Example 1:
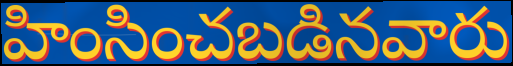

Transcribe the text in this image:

హింసించబడినవారు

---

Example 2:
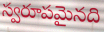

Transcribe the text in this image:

స్వరూపమైనది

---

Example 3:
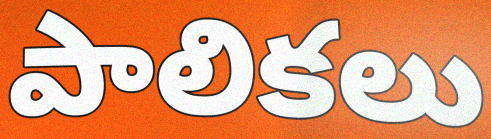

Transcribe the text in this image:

పాలికలు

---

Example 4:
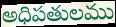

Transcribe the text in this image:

అధిపతులము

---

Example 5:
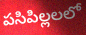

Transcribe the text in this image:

పసిపిల్లలలో